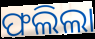
ଫଲିଲା